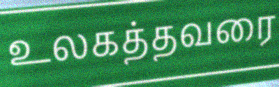
உலகத்தவரை